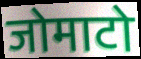
जोमाटो